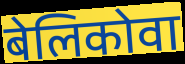
बेलिकोवा